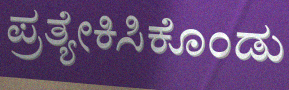
ಪ್ರತ್ಯೇಕಿಸಿಕೊಂಡು